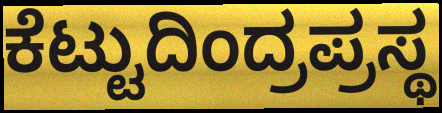
ಕೆಟ್ಟುದಿಂದ್ರಪ್ರಸ್ಥ